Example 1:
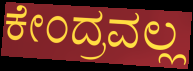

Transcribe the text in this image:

ಕೇಂದ್ರವಲ್ಲ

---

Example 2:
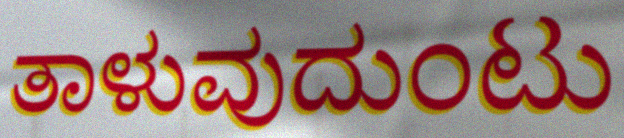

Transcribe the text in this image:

ತಾಳುವುದುಂಟು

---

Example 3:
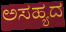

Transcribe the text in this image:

ಅಸಹ್ಯದ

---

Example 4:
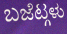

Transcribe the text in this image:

ಬಜೆಟ್ಗಳು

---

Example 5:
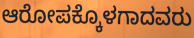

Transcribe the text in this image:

ಆರೋಪಕ್ಕೊಳಗಾದವರು